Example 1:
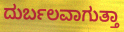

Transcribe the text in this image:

ದುರ್ಬಲವಾಗುತ್ತಾ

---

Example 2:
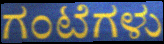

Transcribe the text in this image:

ಗಂಟೆಗಳು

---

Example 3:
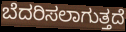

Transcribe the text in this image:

ಬೆದರಿಸಲಾಗುತ್ತದೆ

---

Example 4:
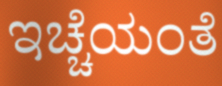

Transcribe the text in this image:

ಇಚ್ಚೆಯಂತೆ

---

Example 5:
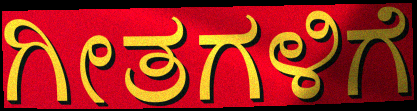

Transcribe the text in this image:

ಗೀತಗಳಿಗೆ